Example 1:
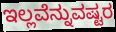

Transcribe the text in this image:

ಇಲ್ಲವೆನ್ನುವಷ್ಟರ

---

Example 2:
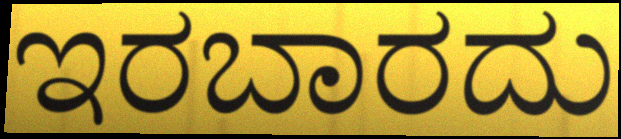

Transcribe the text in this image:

ಇರಬಾರದು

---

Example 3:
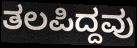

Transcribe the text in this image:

ತಲಪಿದ್ದವು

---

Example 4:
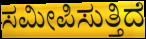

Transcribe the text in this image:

ಸಮೀಪಿಸುತ್ತಿದೆ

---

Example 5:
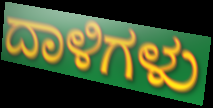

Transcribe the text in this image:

ದಾಳಿಗಳು